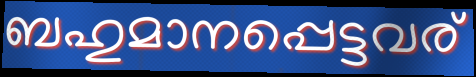
ബഹുമാനപ്പെട്ടവര്